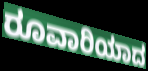
ರೂವಾರಿಯಾದ